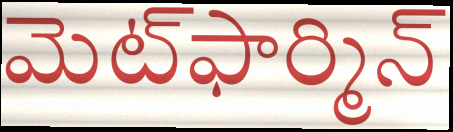
మెట్‌ఫార్మిన్